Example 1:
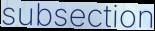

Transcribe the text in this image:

subsection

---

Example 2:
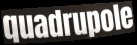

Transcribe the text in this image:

quadrupole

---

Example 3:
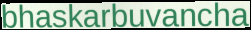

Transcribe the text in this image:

bhaskarbuvancha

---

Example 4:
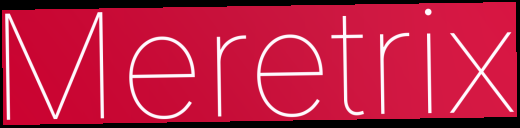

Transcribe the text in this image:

Meretrix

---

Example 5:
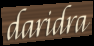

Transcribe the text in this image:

daridra